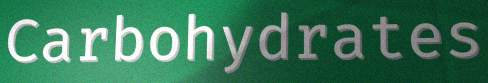
Carbohydrates